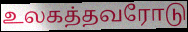
உலகத்தவரோடு